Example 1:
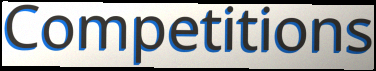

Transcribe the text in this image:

Competitions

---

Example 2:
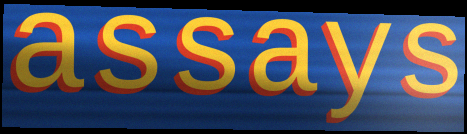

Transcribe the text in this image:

assays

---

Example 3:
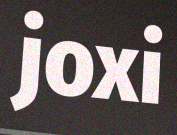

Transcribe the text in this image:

joxi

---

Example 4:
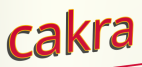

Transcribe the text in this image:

cakra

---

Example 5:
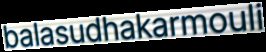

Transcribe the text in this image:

balasudhakarmouli